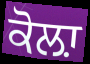
ਕੋਲ਼ਾ